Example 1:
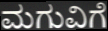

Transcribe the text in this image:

ಮಗುವಿಗೆ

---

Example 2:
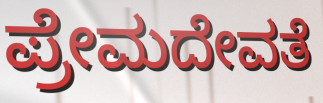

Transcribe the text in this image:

ಪ್ರೇಮದೇವತೆ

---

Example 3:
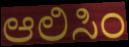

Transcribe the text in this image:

ಆಲಿಸಿಂ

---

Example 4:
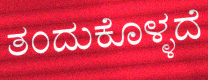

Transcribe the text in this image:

ತಂದುಕೊಳ್ಳದೆ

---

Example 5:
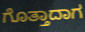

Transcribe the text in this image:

ಗೊತ್ತಾದಾಗ